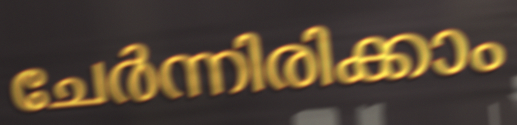
ചേർന്നിരിക്കാം